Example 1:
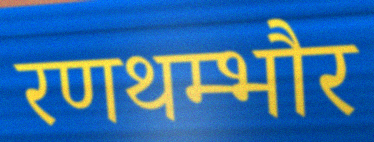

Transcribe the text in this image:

रणथम्भौर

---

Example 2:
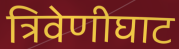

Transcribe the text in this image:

त्रिवेणीघाट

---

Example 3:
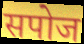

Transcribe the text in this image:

सपोज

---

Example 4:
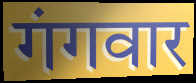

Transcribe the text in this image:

गंगवार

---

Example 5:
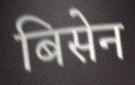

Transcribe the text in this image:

बिसेन